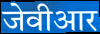
जेवीआर